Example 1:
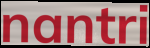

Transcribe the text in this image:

nantri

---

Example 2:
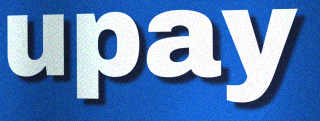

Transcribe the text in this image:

upay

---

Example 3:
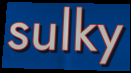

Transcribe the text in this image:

sulky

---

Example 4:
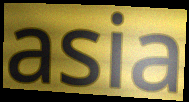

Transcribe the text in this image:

asia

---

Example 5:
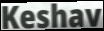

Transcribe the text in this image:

Keshav